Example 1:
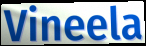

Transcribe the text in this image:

Vineela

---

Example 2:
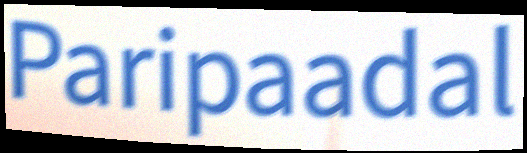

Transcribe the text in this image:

Paripaadal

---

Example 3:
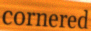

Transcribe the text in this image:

cornered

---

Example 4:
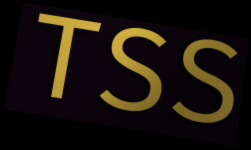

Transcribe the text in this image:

TSS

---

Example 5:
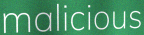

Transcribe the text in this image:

malicious